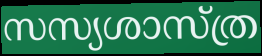
സസ്യശാസ്ത്ര